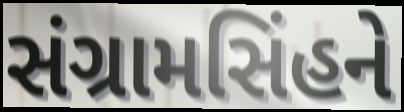
સંગ્રામસિંહને